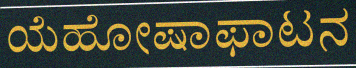
ಯೆಹೋಷಾಫಾಟನ